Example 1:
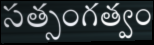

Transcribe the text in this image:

సత్సంగత్వం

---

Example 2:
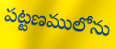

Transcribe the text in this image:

పట్టణములోను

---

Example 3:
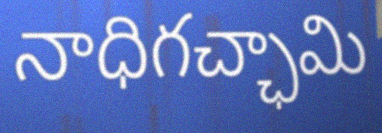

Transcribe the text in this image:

నాధిగచ్ఛామి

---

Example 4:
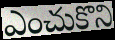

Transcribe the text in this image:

ఎంచుకొని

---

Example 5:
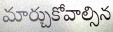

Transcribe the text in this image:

మార్చుకోవాల్సిన